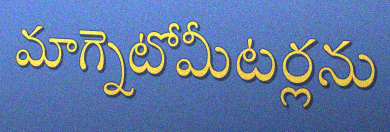
మాగ్నెటోమీటర్లను